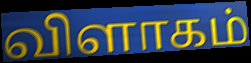
விளாகம்